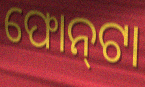
ଫୋନ୍‍ଟା